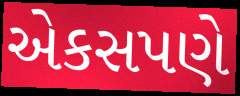
એકસપણે